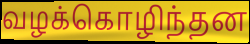
வழக்கொழிந்தன